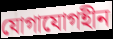
যোগাযোগহীন